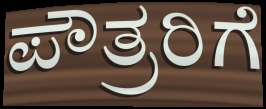
ಪೌತ್ರರಿಗೆ